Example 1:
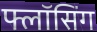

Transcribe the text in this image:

फ्लॉसिंग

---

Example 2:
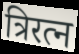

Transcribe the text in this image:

त्रिरत्न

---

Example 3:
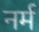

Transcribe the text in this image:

नर्म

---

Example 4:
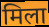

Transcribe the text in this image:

मिला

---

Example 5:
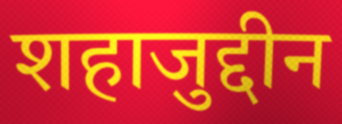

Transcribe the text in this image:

शहाजुद्दीन